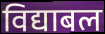
विद्याबल